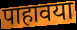
पाहावया